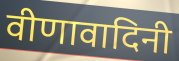
वीणावादिनी